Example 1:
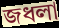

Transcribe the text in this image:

জধলা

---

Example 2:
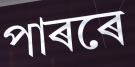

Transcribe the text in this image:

পাৰৰে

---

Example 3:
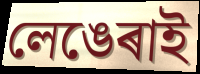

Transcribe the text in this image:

লেঙেৰাই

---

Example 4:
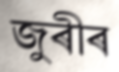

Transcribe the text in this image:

জুৰীৰ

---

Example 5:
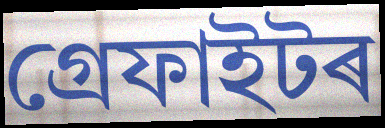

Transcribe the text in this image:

গ্ৰেফাইটৰ